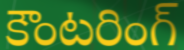
కౌంటరింగ్